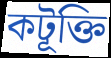
কটূক্তি